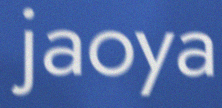
jaoya